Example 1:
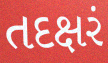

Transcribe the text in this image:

તદક્ષરં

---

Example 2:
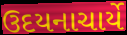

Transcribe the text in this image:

ઉદયનાચાર્યે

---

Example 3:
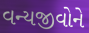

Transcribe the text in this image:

વન્યજીવોને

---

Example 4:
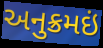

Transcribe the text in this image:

અનુક્રમઇં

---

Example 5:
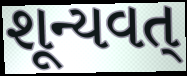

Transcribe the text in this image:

શૂન્યવત્